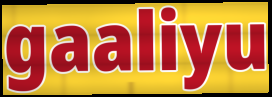
gaaliyu